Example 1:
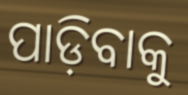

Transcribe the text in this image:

ପାଡ଼ିବାକୁ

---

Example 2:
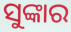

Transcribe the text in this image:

ସୁଙ୍କାର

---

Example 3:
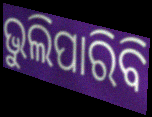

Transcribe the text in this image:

ଭୁଲିପାରିବି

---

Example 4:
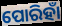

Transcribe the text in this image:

ପୋରିହାଁ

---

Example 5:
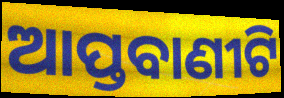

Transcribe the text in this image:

ଆପ୍ତବାଣୀଟି